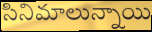
సినిమాలున్నాయి